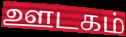
ஊடகம்